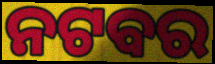
ନଟବର